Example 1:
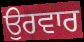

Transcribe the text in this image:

ਉਰਵਾਰ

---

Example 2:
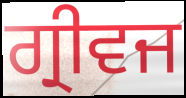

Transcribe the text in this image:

ਗ੍ਰੀਵਜ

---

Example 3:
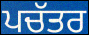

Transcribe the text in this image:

ਪਚੱਤਰ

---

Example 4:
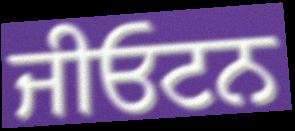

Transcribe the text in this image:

ਜੀਓਟਨ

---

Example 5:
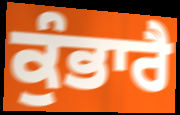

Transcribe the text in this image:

ਕੁੰਭਾਰੈ